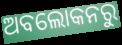
ଅବଲୋକନରୁ